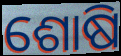
ଶୋଷି